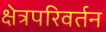
क्षेत्रपरिवर्तन